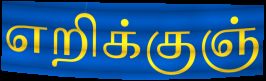
எறிக்குஞ்